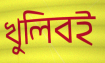
খুলিবই